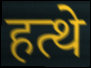
हत्थे